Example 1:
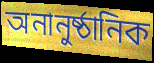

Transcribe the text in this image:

অনানুষ্ঠানিক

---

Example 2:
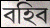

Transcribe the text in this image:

বহিব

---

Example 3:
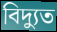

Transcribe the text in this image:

বিদ্যুত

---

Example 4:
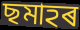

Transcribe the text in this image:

ছমাহৰ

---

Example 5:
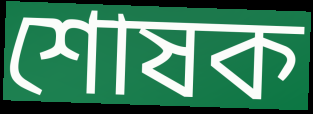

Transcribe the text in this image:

শোষক